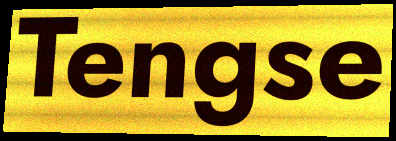
Tengse